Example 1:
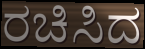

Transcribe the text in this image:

ರಚಿಸಿದ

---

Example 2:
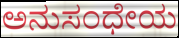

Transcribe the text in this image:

ಅನುಸಂಧೇಯ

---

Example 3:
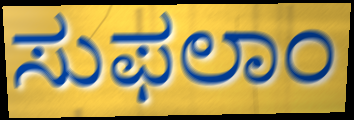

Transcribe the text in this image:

ಸುಫಲಾಂ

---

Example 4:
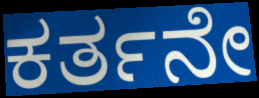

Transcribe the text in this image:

ಕರ್ತನೇ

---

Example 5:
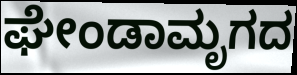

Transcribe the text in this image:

ಘೇಂಡಾಮೃಗದ